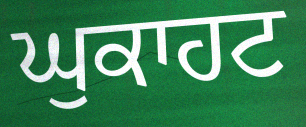
ਘੁਕਾਹਟ